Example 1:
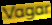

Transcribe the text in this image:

Vagar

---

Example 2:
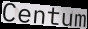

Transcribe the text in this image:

Centum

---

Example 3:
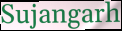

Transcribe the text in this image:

Sujangarh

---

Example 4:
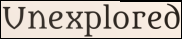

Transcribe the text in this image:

Unexplored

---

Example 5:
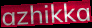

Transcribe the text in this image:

azhikka